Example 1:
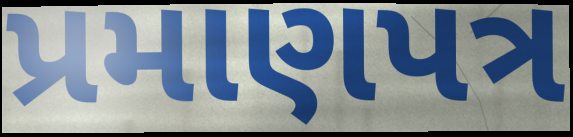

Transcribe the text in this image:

પ્રમાણપત્ર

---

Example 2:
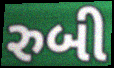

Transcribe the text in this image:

રુબી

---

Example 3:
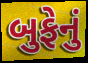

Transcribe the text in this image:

બુફેનું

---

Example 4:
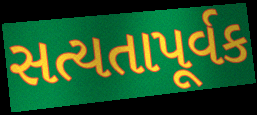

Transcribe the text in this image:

સત્યતાપૂર્વક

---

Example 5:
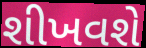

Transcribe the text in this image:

શીખવશે